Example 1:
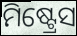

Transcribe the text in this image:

ମିଷ୍ଟ୍ରେସ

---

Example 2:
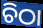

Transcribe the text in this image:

ଚିଠା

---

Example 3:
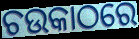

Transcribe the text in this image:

ଚଉକାଠରେ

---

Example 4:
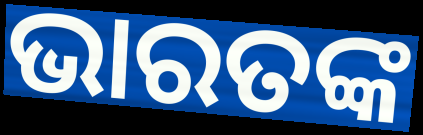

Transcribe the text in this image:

ଭାରତଙ୍କ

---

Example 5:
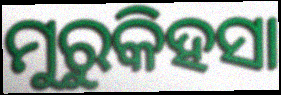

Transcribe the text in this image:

ମୁରୁକିହସା